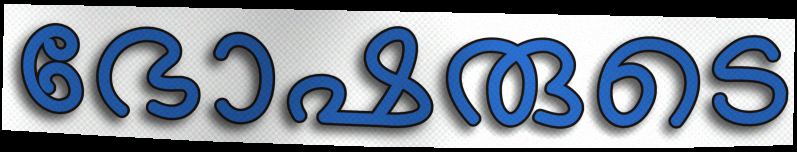
ഭോഷരുടെ